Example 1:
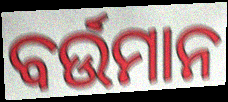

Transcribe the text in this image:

ବର୍ଉମାନ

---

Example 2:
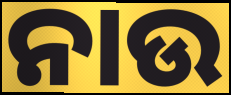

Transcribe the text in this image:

ନାଉ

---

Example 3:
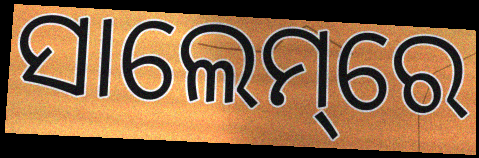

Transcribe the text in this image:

ସାଲେମ୍‌ରେ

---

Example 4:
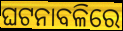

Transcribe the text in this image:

ଘଟନାବଳିରେ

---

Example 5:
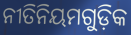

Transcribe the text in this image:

ନୀତିନିୟମଗୁଡ଼ିକ